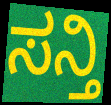
ಸನ್ತಿ